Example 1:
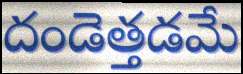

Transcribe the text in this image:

దండెత్తడమే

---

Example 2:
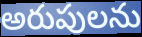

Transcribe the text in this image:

అరుపులను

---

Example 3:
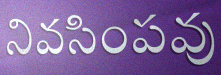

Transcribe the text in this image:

నివసింపవు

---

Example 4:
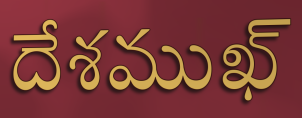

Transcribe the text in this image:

దేశముఖ్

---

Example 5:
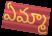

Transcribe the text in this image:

ఏమ్మా